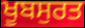
ਖੂਬਸੁਰਤ